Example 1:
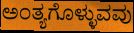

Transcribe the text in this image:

ಅಂತ್ಯಗೊಳ್ಳುವವು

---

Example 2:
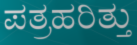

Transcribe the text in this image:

ಪತ್ರಹರಿತ್ತು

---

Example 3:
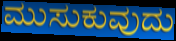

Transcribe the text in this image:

ಮುಸುಕುವುದು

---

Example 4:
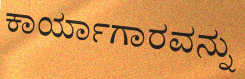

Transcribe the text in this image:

ಕಾರ್ಯಾಗಾರವನ್ನು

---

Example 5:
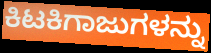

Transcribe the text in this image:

ಕಿಟಕಿಗಾಜುಗಳನ್ನು